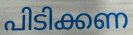
പിടിക്കണ